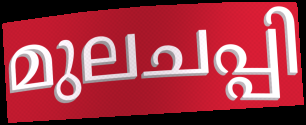
മുലചപ്പി